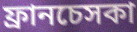
ফ্রানচেসকা